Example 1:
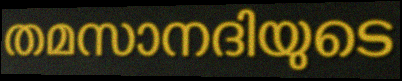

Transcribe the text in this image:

തമസാനദിയുടെ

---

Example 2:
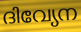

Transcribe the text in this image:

ദിവ്യേന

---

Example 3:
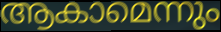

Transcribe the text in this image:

ആകാമെന്നും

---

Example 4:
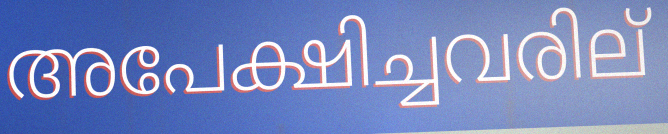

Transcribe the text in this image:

അപേക്ഷിച്ചവരില്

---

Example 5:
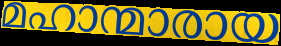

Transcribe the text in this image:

മഹാന്മാരായ